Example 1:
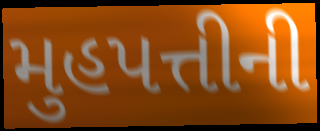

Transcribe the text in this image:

મુહપત્તીની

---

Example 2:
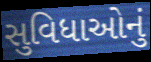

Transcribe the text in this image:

સુવિધાઓનું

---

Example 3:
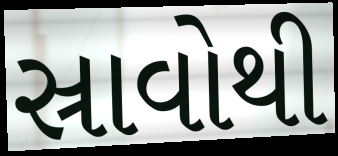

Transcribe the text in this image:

સ્રાવોથી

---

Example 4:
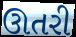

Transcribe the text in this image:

ઊતરી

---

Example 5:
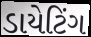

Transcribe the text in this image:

ડાયેટિંગ